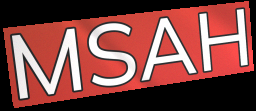
MSAH